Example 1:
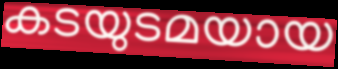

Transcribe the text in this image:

കടയുടമയായ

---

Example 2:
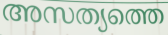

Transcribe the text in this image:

അസത്യത്തെ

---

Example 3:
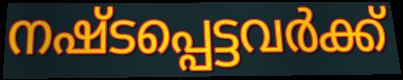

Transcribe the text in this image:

നഷ്ടപ്പെട്ടവർക്ക്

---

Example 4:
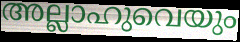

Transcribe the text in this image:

അല്ലാഹുവെയും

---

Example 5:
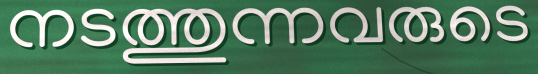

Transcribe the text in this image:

നടത്തുന്നവരുടെ